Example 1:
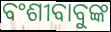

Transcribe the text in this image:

ବଂଶୀବାବୁଙ୍କ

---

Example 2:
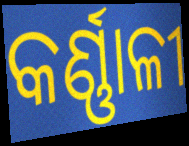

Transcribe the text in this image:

କର୍ଣ୍ଣାଳୀ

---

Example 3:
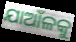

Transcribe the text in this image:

ଯାଆଁଳକୁ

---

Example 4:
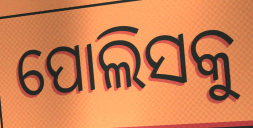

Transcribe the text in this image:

ପୋଲିସକୁ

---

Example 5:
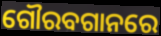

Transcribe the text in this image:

ଗୌରବଗାନରେ